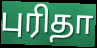
புரிதா